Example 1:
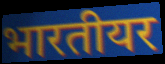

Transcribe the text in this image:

भारतीयर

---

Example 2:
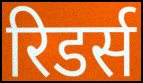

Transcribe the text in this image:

रिडर्स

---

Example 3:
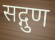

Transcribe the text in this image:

सद्गुण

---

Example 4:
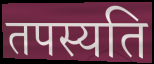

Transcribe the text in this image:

तपस्यति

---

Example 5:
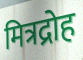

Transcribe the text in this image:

मित्रद्रोह